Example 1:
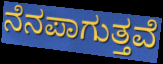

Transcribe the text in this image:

ನೆನಪಾಗುತ್ತವೆ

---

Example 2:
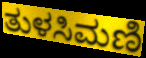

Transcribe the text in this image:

ತುಳಸಿಮಣಿ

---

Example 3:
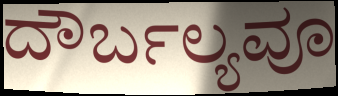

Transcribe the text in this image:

ದೌರ್ಬಲ್ಯವೂ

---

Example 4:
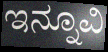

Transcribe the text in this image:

ಇನ್ನೂವಿ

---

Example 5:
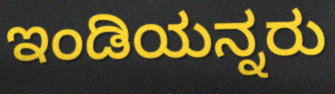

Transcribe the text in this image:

ಇಂಡಿಯನ್ನರು